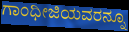
ಗಾಂಧೀಜಿಯವರನ್ನೂ